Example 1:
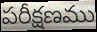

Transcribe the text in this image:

పరీక్షణము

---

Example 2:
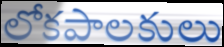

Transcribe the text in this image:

లోకపాలకులు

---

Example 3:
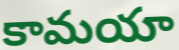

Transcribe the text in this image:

కామయా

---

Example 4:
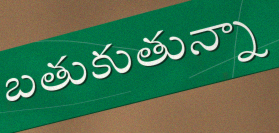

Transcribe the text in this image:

బతుకుతున్నా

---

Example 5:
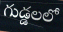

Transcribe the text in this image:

గుడ్డలలో